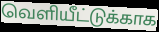
வெளியீட்டுக்காக